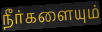
நீர்களையும்